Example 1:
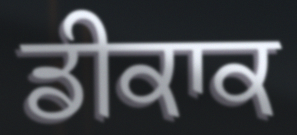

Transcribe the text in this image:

ਡੀਕਾਕ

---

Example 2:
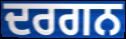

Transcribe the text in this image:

ਦਰਗਨ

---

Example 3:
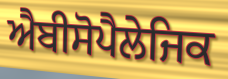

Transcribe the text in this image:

ਐਬੀਸੋਪੈਲੇਜਿਕ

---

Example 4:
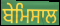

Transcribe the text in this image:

ਬੇਮਿਸਾਲ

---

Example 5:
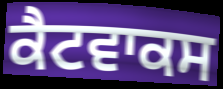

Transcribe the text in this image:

ਕੈਟਵਾਕਸ